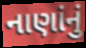
નાણાંનું